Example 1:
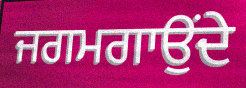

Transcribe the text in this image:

ਜਗਮਗਾਉਂਦੇ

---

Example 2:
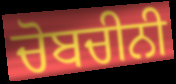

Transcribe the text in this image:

ਚੋਬਚੀਨੀ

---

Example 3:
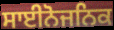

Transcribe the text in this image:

ਸਾਈਨੋਜਨਿਕ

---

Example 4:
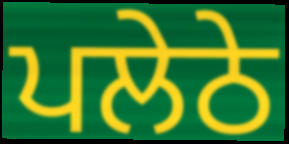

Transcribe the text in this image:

ਪਲੇਠੇ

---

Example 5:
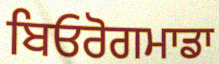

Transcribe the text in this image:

ਬਿਓਰੋਗਮਾਡਾ